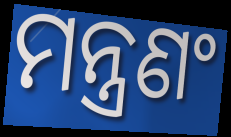
ମନ୍ତ୍ରଣଂ